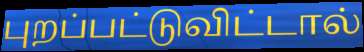
புறப்பட்டுவிட்டால்